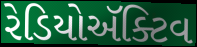
રેડિયોઍક્ટિવ